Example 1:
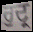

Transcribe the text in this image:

ਰੁਦ੍ਰ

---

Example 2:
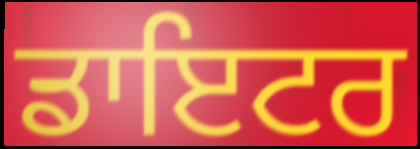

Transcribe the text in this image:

ਡਾਇਟਰ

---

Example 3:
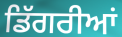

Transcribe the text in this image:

ਡਿੱਗਰੀਆਂ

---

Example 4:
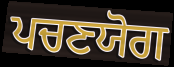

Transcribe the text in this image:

ਪਚਣਯੋਗ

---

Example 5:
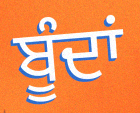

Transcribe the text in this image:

ਬੂੰਦਾਂ